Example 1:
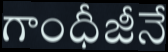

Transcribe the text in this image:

గాంధీజీనే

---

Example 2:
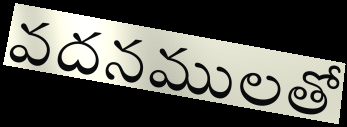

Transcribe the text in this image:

వదనములతో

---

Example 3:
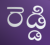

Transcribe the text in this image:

రెడ్డి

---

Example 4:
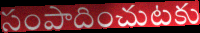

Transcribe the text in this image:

సంపాదించుటకు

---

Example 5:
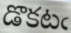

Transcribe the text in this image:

డొకటఁ